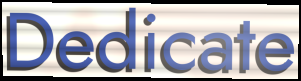
Dedicate